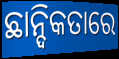
ଛାନ୍ଦିକତାରେ